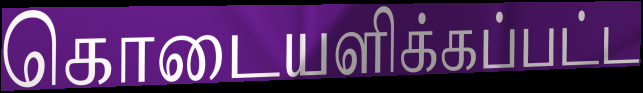
கொடையளிக்கப்பட்ட